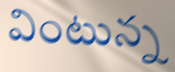
వింటున్న